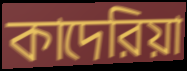
কাদেরিয়া